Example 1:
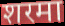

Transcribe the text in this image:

शरमा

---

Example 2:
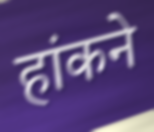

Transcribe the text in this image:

हांकने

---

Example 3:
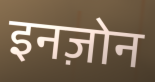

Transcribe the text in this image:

इनज़ोन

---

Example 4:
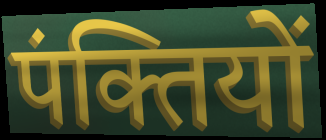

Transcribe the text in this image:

पंक्तियों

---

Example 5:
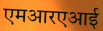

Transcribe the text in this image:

एमआरएआई